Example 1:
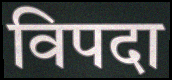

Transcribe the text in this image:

विपदा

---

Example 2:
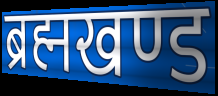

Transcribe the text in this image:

ब्रह्मखण्ड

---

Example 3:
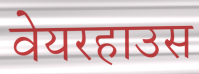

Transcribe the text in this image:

वेयरहाउस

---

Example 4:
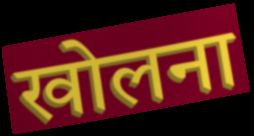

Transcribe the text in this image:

खोलना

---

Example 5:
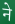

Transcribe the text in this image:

ने